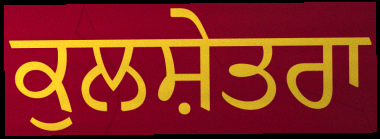
ਕੁਲਸ਼ੇਤਰਾ